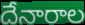
దేనారాల